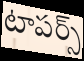
టాపర్స్